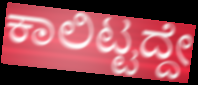
ಕಾಲಿಟ್ಟದ್ದೇ